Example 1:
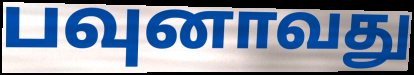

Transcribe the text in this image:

பவுனாவது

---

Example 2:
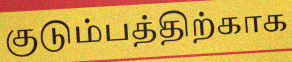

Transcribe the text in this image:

குடும்பத்திற்காக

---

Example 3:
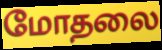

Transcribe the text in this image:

மோதலை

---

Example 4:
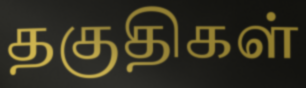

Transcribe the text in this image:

தகுதிகள்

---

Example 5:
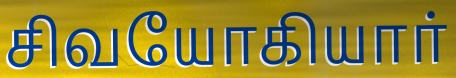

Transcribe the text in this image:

சிவயோகியார்